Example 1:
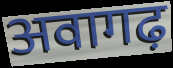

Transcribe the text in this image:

अवागढ़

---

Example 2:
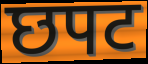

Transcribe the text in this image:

छपट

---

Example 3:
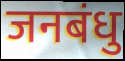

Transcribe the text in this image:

जनबंधु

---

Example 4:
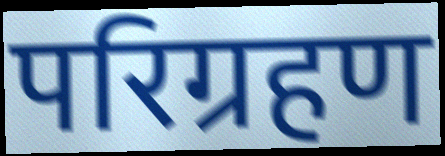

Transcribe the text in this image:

परिग्रहण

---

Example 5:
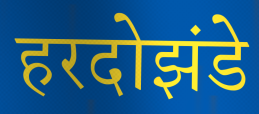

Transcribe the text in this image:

हरदोझंडे